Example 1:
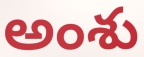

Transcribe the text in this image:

అంశు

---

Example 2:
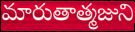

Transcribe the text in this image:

మారుతాత్మజుని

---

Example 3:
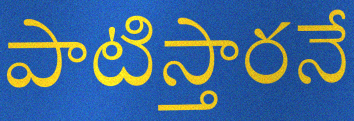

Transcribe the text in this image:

పాటిస్తారనే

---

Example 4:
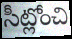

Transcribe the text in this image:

సీట్లోంచి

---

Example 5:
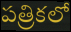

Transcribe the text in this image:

పత్రికలో